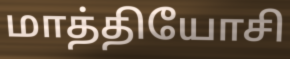
மாத்தியோசி